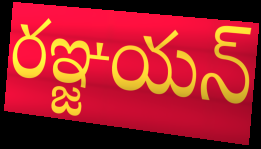
రఞ్జయన్